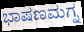
ಭಾಷಣಮಗ್ನ